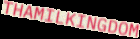
THAMILKINGDOM